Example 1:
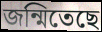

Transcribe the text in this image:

জন্মিতেছে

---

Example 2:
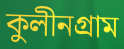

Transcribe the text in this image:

কুলীনগ্রাম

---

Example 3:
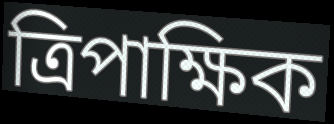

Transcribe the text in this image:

ত্রিপাক্ষিক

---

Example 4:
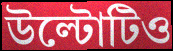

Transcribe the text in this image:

উল্টোটিও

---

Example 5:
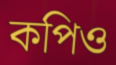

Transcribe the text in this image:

কপিও